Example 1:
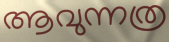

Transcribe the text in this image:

ആവുന്നത്ര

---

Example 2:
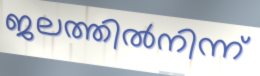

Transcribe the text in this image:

ജലത്തിൽനിന്ന്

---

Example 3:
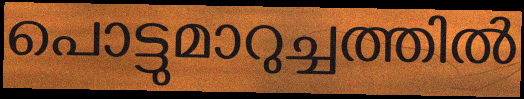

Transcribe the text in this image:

പൊട്ടുമാറുച്ചത്തിൽ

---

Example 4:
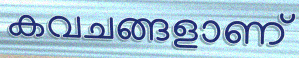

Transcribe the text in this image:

കവചങ്ങളാണ്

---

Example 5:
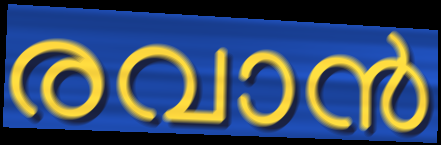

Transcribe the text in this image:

രവാൻ